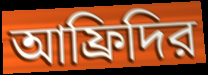
আফ্রিদির